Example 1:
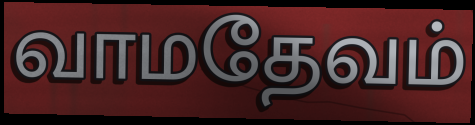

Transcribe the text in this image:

வாமதேவம்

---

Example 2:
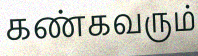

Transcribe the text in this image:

கண்கவரும்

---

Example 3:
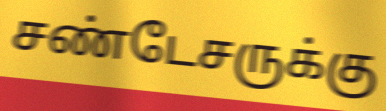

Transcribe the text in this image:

சண்டேசருக்கு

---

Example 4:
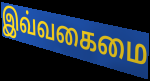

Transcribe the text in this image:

இவ்வகைமை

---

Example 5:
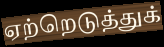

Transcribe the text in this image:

ஏற்றெடுத்துக்